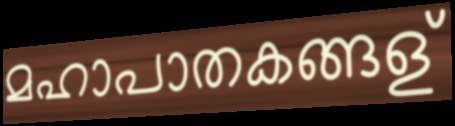
മഹാപാതകങ്ങള്